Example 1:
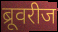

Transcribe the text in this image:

ब्रूवरीज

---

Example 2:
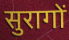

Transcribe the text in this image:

सुरागों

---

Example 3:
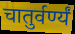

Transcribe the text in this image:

चातुर्वर्ण्यं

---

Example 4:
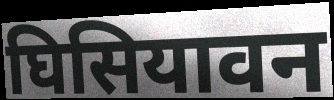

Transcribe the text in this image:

घिसियावन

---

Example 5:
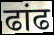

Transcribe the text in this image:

ढांढ